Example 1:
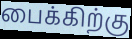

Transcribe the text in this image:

பைக்கிற்கு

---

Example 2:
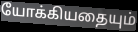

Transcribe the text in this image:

யோக்கியதையும்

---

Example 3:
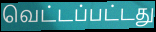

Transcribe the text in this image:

வெட்டப்பட்டது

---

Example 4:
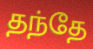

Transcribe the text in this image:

தந்தே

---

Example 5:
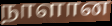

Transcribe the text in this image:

நாளான